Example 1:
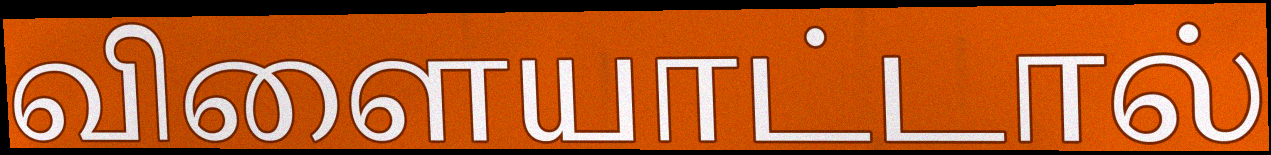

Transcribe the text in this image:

விளையாட்டால்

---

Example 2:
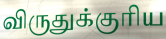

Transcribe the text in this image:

விருதுக்குரிய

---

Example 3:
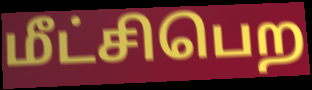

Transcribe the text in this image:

மீட்சிபெற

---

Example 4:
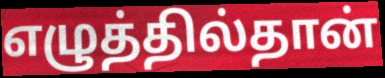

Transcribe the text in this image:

எழுத்தில்தான்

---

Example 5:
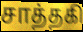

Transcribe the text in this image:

சாத்தகி